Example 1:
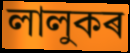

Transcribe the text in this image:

লালুকৰ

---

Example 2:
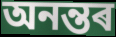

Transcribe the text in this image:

অনন্তৰ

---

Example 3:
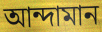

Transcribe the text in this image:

আন্দামান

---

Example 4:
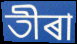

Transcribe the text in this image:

তীৰা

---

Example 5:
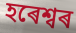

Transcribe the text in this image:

হৰেশ্বৰ